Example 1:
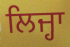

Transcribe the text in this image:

ਲਿਜ੍ਹਾ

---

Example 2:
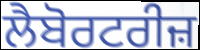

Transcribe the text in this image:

ਲੈਬੋਰਟਰੀਜ਼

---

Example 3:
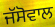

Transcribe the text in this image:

ਜੱਸੋਵਾਲ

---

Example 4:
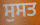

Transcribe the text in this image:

ਸੁਸਤ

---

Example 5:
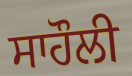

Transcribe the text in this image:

ਸਾਹੌਲੀ